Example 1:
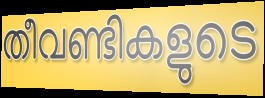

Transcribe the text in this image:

തീവണ്ടികളുടെ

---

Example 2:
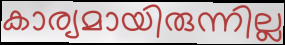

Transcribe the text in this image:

കാര്യമായിരുന്നില്ല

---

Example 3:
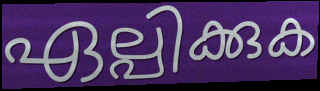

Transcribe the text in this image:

ഏല്പിക്കുക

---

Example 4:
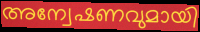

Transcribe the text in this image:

അന്വേഷണവുമായി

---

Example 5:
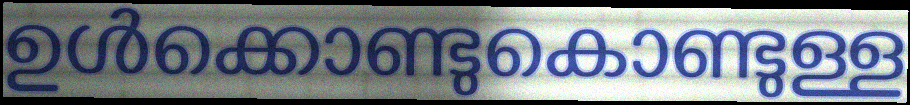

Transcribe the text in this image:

ഉൾക്കൊണ്ടുകൊണ്ടുള്ള